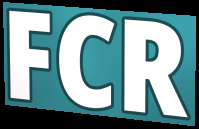
FCR